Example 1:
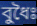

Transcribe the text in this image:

বুধৈঃ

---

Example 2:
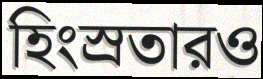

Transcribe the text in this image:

হিংস্রতারও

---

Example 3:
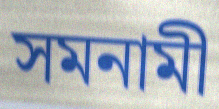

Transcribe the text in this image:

সমনামী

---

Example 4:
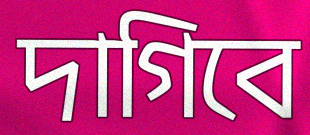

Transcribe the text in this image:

দাগিবে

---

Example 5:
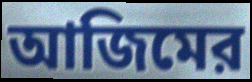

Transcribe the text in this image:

আজিমের